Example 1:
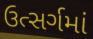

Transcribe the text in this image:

ઉત્સર્ગમાં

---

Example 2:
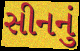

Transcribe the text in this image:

સીનનું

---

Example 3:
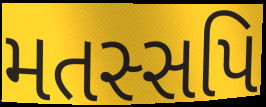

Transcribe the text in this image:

મતસ્સપિ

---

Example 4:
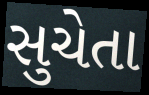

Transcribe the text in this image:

સુચેતા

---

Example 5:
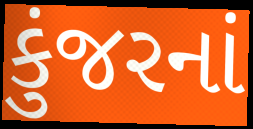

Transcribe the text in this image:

કુંજરનાં